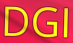
DGI